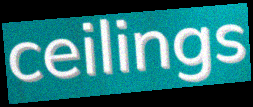
ceilings